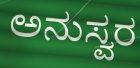
ಅನುಸ್ವರ